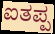
ಐತಪ್ಪ